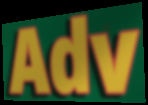
Adv